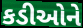
કડીઓને